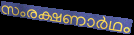
സംരക്ഷണാർഥം